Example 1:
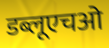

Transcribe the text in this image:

डब्लूएचओ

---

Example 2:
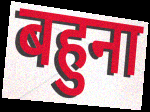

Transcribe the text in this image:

बहुना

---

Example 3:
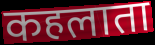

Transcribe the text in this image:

कहलाता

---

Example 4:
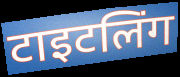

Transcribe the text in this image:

टाइटलिंग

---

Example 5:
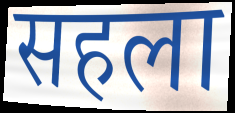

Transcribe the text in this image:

सहला